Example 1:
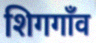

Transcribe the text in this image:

शिगगाँव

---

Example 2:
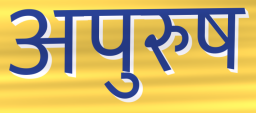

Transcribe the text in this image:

अपुरुष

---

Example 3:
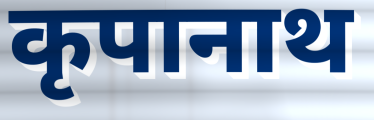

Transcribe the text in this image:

कृपानाथ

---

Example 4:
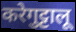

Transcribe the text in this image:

करेगुट्टालू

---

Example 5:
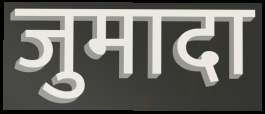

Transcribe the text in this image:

जुमादा